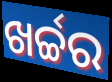
ଖର୍ଚ୍ଚର